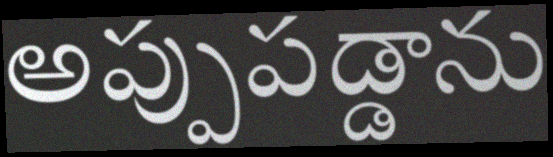
అప్పుపడ్డాను